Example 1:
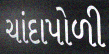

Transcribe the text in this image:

ચાંદાપોળી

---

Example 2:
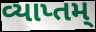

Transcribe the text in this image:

વ્યાપ્તમ્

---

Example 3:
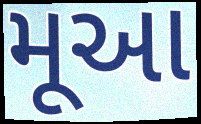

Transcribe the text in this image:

મૂઆ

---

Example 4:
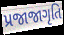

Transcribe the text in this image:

પ્રજાજાગૃતિ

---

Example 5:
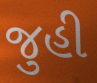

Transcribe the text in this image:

જુહી